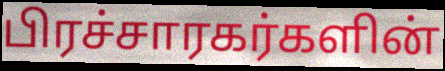
பிரச்சாரகர்களின்